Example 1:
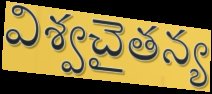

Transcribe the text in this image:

విశ్వచైతన్య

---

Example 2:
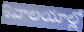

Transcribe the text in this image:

శివాలయాల్లో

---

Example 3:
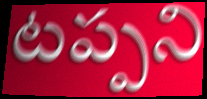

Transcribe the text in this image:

టప్పని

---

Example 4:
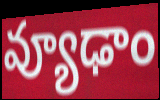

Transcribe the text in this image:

వ్యూఢాం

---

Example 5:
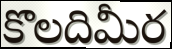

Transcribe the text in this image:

కొలదిమీర